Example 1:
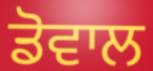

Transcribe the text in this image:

ਡੋਵਾਲ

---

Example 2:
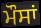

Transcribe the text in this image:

ਮੌਸਾਂ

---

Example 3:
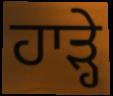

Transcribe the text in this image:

ਹਾੜ੍ਹੇ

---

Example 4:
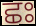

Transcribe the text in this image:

ਛਃ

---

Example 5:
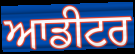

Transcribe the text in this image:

ਆਡੀਟਰ